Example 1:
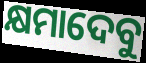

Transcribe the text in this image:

କ୍ଷମାଦେବୁ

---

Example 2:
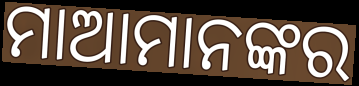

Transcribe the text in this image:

ମାଆମାନଙ୍କର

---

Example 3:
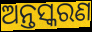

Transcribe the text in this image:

ଅନ୍ତସ୍କରଣ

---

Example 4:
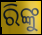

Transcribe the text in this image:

ରିଙ୍କୁ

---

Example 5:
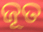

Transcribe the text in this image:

ଜୂତ